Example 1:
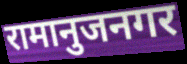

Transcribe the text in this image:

रामानुजनगर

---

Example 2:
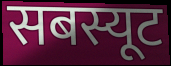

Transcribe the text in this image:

सबस्यूट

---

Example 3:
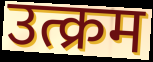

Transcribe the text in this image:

उत्क्रम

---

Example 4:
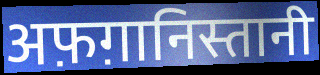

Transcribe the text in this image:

अफ़ग़ानिस्तानी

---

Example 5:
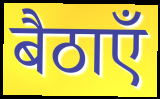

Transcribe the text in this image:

बैठाएँ